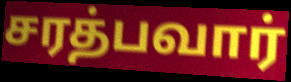
சரத்பவார்